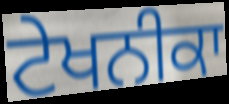
ਟੇਖਨੀਕਾ